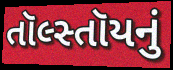
તૉલ્સ્તૉયનું